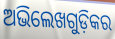
ଅଭିଲେଖଗୁଡ଼ିକର